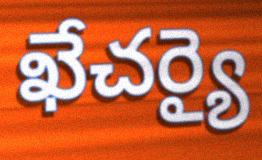
ఖేచర్యై